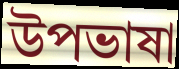
উপভাষা